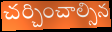
చర్చించాల్సిన